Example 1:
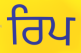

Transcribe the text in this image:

ਰਿਪ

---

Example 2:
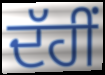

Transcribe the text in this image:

ਦੱਹੀਂ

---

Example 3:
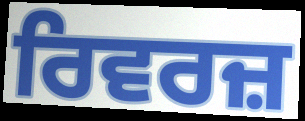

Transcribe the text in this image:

ਰਿਵਰਜ਼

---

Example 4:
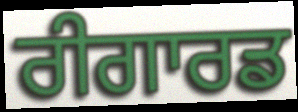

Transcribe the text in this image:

ਰੀਗਾਰਡ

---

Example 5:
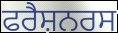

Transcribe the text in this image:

ਫਰੈਸ਼ਨਰਸ